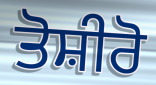
ਤੋਸ਼ੀਰੋ